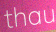
thau